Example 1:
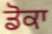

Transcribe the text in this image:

ਡੋਕਾ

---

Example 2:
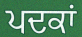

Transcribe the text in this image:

ਪਦਕਾਂ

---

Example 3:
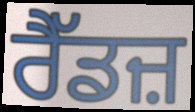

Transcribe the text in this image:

ਰੈੱਡਜ਼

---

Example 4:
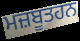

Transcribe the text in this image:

ਮਜ਼ਬੂਤਹਨ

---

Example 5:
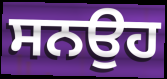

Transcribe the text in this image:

ਸਨਉਹ